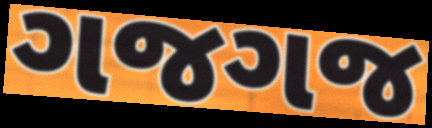
ગજગજ